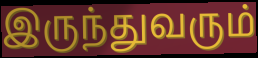
இருந்துவரும்